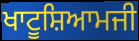
ਖਾਟੂਸ਼ਿਆਮਜੀ